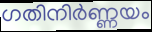
ഗതിനിർണ്ണയം